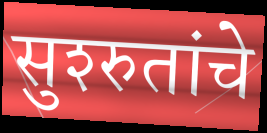
सुश्रुतांचे